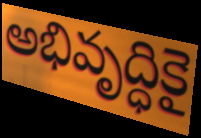
అభివృద్ధికై